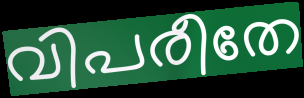
വിപരീതേ